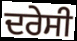
ਦਰੇਸੀ